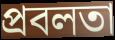
প্রবলতা